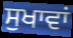
ਸੁਖਾਵਾਂ